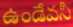
ఉండేవనీ